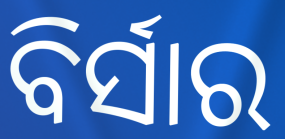
ବିର୍ସାର